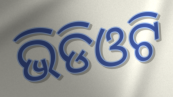
ଭିଡିଓଟି